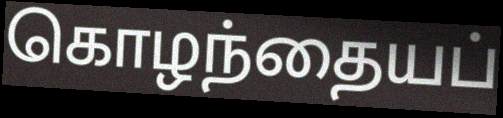
கொழந்தையப்